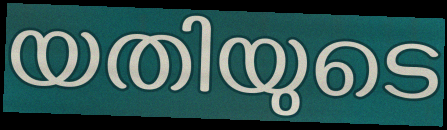
യതിയുടെ